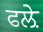
ਫਲ਼ੇ